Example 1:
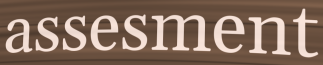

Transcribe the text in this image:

assesment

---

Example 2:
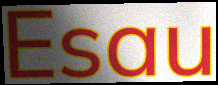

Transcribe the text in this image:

Esau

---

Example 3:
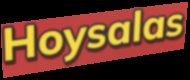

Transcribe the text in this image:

Hoysalas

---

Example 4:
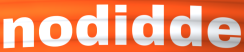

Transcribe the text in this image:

nodidde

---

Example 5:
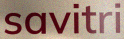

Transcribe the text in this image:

savitri